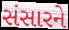
સંસારને